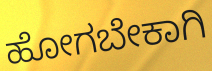
ಹೋಗಬೇಕಾಗಿ